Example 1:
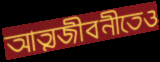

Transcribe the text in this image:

আত্মজীবনীতেও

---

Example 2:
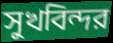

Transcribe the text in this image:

সুখবিন্দর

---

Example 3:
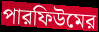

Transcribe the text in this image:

পারফিউমের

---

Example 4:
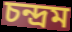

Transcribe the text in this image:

চন্দ্রম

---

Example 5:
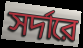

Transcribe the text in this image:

সর্দারে